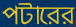
পটারের